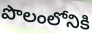
పొలంలోనికి